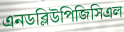
এনডব্লিউপিজিসিএল